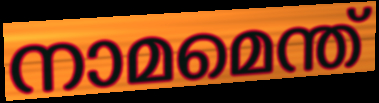
നാമമെന്ത്